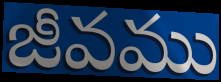
జీవము